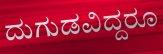
ದುಗುಡವಿದ್ದರೂ